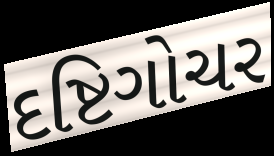
દષ્ટિગોચર